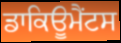
ਡਾਕਿਊਮੈਂਟਸ